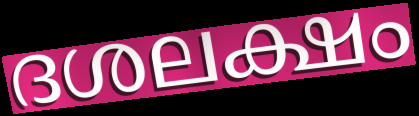
ദശലക്ഷം